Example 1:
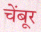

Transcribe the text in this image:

चेंबूर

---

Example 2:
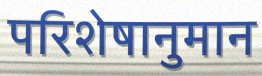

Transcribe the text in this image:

परिशेषानुमान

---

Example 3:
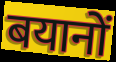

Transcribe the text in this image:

बयानों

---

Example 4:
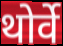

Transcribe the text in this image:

थोर्वे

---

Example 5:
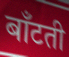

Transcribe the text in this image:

बाँटती